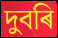
দুবৰি